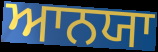
ਆਨਯਾ